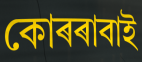
কোৰৰাবাই